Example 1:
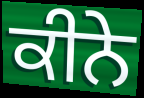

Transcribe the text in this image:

ਕੀਨੇ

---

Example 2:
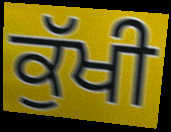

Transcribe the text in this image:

ਕੁੱਖੀ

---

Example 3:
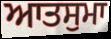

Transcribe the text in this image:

ਆਤਸੁਮਾ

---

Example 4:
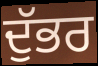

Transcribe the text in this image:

ਦੁੱਭਰ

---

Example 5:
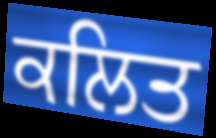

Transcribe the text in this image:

ਕਲਿਤ